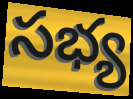
సభ్య